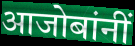
आजोबांनीं